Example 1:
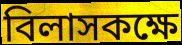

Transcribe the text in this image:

বিলাসকক্ষে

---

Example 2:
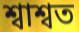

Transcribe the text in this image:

শ্বাশ্বত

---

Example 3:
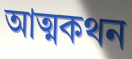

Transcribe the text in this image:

আত্মকথন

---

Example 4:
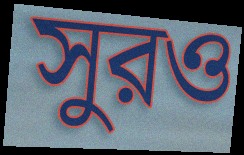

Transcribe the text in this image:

সুরও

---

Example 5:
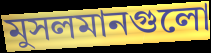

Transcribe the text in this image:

মুসলমানগুলো